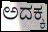
ಅದಕ್ಕ